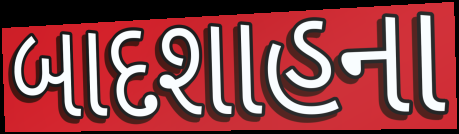
બાદશાહના